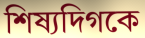
শিষ্যদিগকে